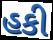
હકી